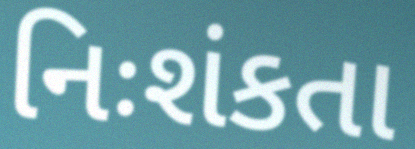
નિઃશંકતા